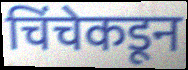
चिंचेकडून